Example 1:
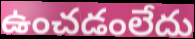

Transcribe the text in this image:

ఉంచడంలేదు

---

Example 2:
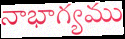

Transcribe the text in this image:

నాభాగ్యము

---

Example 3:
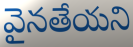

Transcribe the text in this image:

వైనతేయని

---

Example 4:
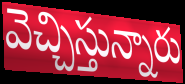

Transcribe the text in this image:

వెచ్చిస్తున్నారు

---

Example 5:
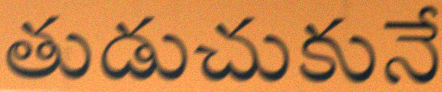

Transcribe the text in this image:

తుడుచుకునే